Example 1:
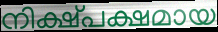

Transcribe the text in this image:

നിക്ഷ്പക്ഷമായ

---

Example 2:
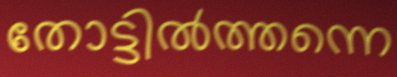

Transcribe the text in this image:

തോട്ടിൽത്തന്നെ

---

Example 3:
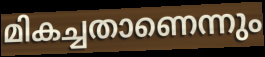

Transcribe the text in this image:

മികച്ചതാണെന്നും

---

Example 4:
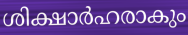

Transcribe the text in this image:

ശിക്ഷാർഹരാകും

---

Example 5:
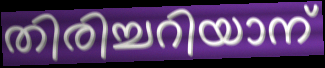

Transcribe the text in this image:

തിരിച്ചറിയാന്